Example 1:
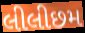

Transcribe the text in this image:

લીલીછમ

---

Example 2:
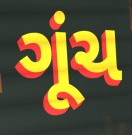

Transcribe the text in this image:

ગૂંચ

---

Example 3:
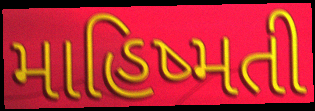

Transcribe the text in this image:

માહિષ્મતી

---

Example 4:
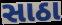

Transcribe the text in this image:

સાઠા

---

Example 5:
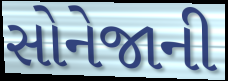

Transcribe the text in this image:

સોનેજાની